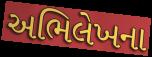
અભિલેખના